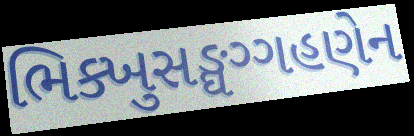
ભિક્ખુસઙ્ઘગ્ગહણેન